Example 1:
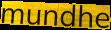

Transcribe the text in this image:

mundhe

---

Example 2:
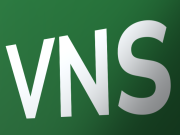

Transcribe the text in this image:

VNS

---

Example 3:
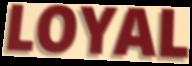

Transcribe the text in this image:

LOYAL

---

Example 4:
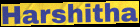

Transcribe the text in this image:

Harshitha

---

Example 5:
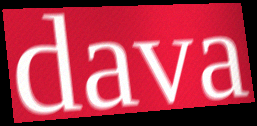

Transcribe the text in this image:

dava